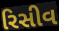
રિસીવ